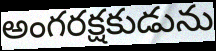
అంగరక్షకుడును